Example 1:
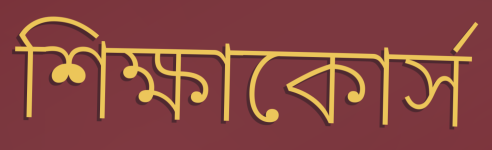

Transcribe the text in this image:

শিক্ষাকোর্স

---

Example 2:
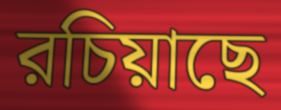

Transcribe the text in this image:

রচিয়াছে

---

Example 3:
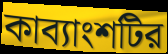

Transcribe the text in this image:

কাব্যাংশটির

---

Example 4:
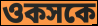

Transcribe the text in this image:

ওকসকে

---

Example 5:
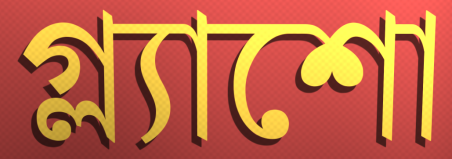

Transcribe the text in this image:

গ্ল্যাশো